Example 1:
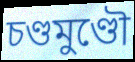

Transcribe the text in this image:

চণ্ডমুণ্ডৌ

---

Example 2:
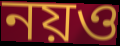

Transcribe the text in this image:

নয়ও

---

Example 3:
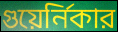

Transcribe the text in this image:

গুয়ের্নিকার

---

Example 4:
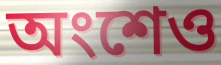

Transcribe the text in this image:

অংশেও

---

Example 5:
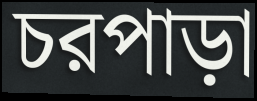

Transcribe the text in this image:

চরপাড়া